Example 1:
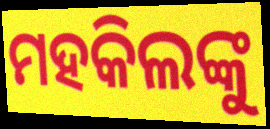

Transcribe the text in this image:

ମହକିଲଙ୍କୁ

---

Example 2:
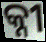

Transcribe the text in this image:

କ୍ନୀ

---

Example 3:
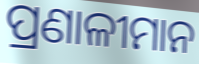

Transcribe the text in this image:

ପ୍ରଣାଳୀମାନ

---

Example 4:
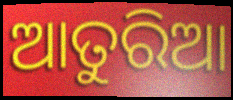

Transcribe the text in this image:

ଆତୁରିଆ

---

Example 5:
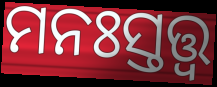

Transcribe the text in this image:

ମନଃସ୍ତତ୍ତ୍ଵ